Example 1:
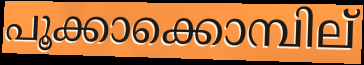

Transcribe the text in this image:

പൂക്കാക്കൊമ്പില്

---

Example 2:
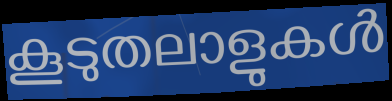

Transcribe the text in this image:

കൂടുതലാളുകൾ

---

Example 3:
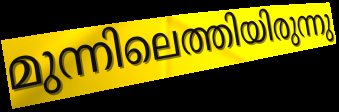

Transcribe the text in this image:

മുന്നിലെത്തിയിരുന്നു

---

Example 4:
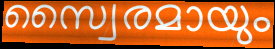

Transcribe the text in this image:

സ്വൈരമായും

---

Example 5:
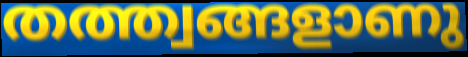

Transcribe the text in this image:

തത്ത്വങ്ങളാണു